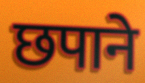
छपाने